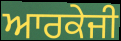
ਆਰਕੇਜੀ